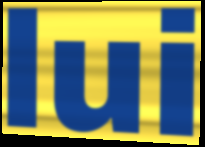
lui